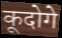
कूदोगे